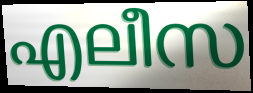
എലീസ